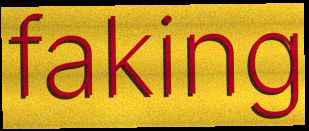
faking